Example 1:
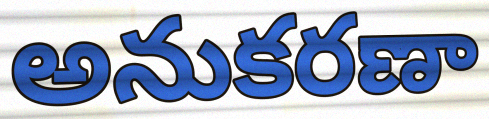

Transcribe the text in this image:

అనుకరణా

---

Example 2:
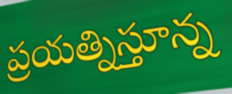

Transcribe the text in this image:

ప్రయత్నిస్తూన్న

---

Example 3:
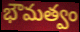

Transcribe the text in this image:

భౌమత్వం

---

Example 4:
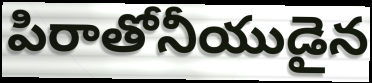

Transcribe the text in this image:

పిరాతోనీయుడైన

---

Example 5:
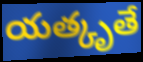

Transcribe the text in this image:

యత్కృతే